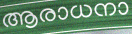
ആരാധനാ